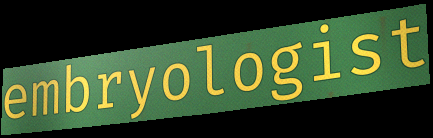
embryologist